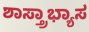
ಶಾಸ್ತ್ರಾಭ್ಯಾಸ